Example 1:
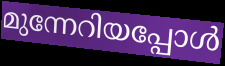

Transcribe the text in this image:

മുന്നേറിയപ്പോൾ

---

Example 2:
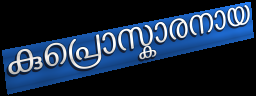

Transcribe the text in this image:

കുപ്രൊസ്കാരനായ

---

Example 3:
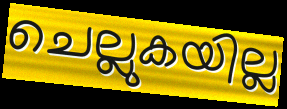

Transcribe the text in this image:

ചെല്ലുകയില്ല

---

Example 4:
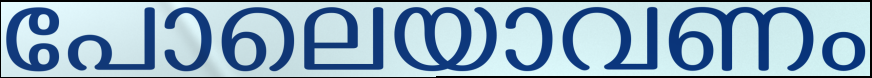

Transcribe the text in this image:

പോലെയാവണം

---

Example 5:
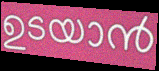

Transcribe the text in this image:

ഉടയാൻ